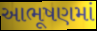
આભૂષણમાં